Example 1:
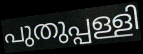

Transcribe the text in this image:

പുതുപ്പള്ളി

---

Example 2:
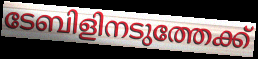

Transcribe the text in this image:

ടേബിളിനടുത്തേക്ക്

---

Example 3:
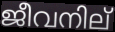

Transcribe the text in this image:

ജീവനില്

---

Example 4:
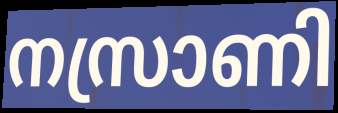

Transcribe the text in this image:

നസ്രാണി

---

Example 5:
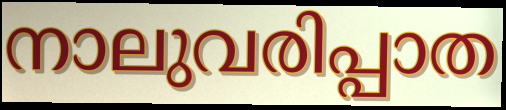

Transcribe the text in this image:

നാലുവരിപ്പാത